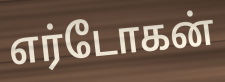
எர்டோகன்